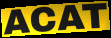
ACAT